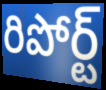
రిపోర్ట్